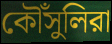
কৌঁসুলিরা